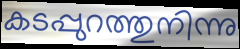
കടപ്പുറത്തുനിന്നു